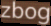
zbog